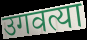
उगवत्या